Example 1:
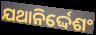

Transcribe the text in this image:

ଯଥାନିର୍ଦ୍ଦେଶଂ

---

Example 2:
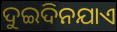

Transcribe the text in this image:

ଦୁଇଦିନଯାଏ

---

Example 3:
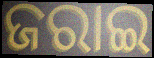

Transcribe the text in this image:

ଜରାଇ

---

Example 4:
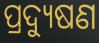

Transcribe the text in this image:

ପ୍ରଦ୍ଯୁଷଣ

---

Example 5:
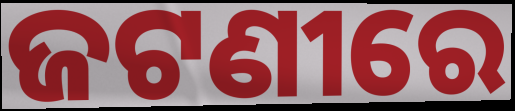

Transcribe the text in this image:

ଜଟଣୀରେ